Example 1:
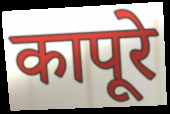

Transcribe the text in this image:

कापूरे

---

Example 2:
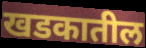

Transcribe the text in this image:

खडकातील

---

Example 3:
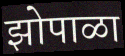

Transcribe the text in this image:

झोपाळा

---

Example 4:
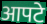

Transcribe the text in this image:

आपटे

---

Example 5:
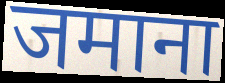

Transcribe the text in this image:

जमाना